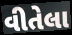
વીતેલા